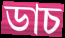
ডাচ